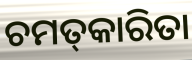
ଚମତ୍‌କାରିତା